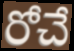
రోచే